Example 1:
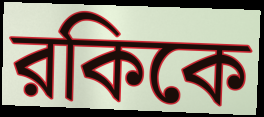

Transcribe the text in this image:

রকিকে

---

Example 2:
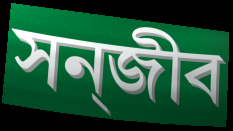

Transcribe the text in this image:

সন্জীব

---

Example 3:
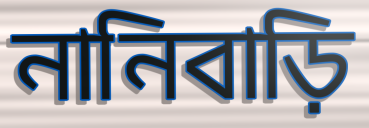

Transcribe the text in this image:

নানিবাড়ি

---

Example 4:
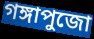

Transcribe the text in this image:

গঙ্গাপুজো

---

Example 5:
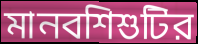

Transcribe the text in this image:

মানবশিশুটির